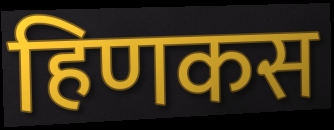
हिणकस